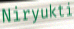
Niryukti